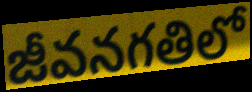
జీవనగతిలో